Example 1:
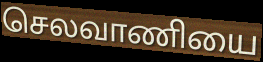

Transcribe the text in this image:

செலவாணியை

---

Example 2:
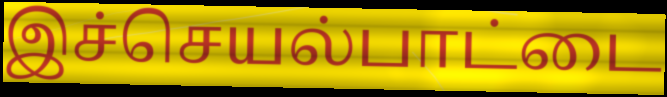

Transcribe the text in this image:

இச்செயல்பாட்டை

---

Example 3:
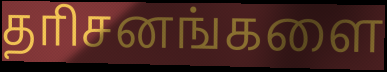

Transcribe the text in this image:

தரிசனங்களை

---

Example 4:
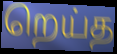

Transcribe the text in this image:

றெய்த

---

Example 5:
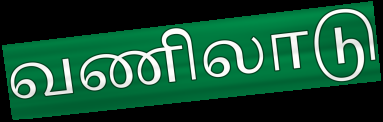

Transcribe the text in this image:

வணிலாடு